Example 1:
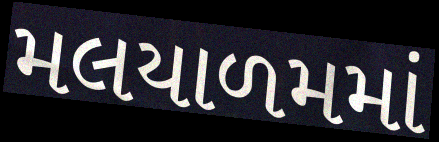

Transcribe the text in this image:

મલયાળમમાં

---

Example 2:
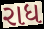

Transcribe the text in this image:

રાધ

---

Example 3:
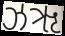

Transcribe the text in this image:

ઝૠ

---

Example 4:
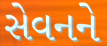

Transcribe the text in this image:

સેવનને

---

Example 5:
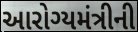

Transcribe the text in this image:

આરોગ્યમંત્રીની